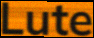
Lute